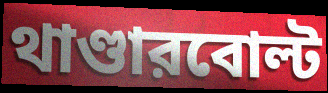
থাণ্ডারবোল্ট